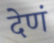
देणं